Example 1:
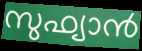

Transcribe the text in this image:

സുഫ്യാൻ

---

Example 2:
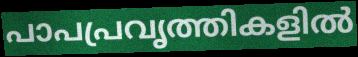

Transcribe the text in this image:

പാപപ്രവൃത്തികളിൽ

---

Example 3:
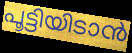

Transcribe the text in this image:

പൂട്ടിയിടാൻ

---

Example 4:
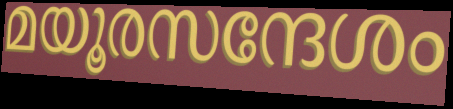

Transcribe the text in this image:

മയൂരസന്ദേശം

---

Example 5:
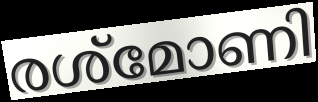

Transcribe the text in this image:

രശ്മോണി